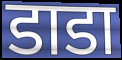
डाडा